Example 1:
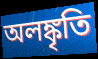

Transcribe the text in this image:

অলঙ্কৃতি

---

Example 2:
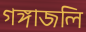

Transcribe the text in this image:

গঙ্গাজলি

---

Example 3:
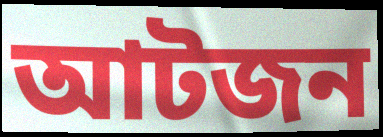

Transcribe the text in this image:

আটজন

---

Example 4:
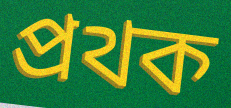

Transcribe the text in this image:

প্রথক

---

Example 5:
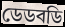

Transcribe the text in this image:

ডেডবডি